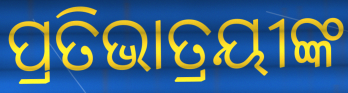
ପ୍ରତିଭାତ୍ରୟୀଙ୍କ